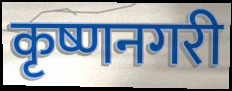
कृष्णनगरी